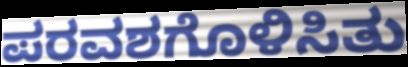
ಪರವಶಗೊಳಿಸಿತು